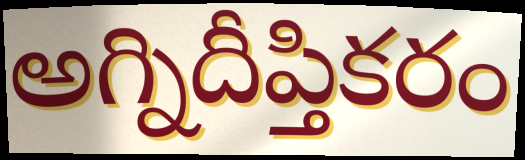
అగ్నిదీప్తికరం